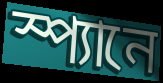
স্প্যানে